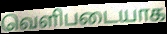
வெளிபடையாக